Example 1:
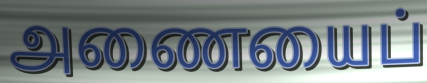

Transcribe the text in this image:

அணையைப்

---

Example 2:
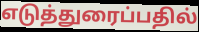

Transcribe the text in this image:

எடுத்துரைப்பதில்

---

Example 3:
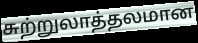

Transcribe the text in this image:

சுற்றுலாத்தலமான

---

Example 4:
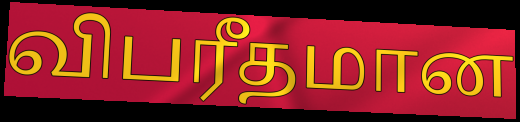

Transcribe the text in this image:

விபரீதமான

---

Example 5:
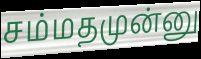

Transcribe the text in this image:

சம்மதமுன்னு